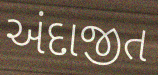
અંદાજીત